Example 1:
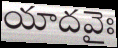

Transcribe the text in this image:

యాదవైః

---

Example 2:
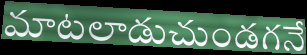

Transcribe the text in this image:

మాటలాడుచుండగనే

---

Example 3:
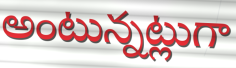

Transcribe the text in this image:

అంటున్నట్లుగా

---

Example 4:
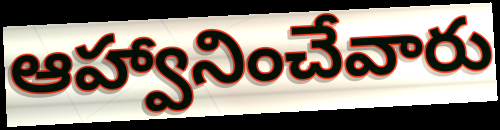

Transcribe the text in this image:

ఆహ్వానించేవారు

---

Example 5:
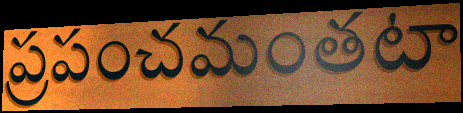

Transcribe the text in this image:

ప్రపంచమంతటా